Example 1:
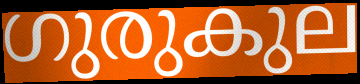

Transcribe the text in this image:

ഗുരുകുല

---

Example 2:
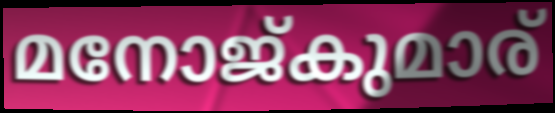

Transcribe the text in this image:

മനോജ്കുമാര്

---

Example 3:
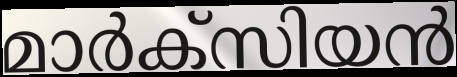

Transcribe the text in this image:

മാർക്സിയൻ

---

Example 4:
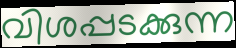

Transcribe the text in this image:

വിശപ്പടക്കുന്ന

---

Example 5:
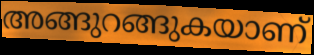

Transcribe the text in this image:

അങ്ങുറങ്ങുകയാണ്